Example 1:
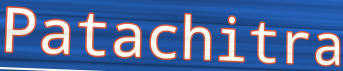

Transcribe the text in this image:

Patachitra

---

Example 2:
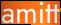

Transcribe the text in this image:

amitt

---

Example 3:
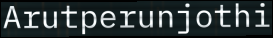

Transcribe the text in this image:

Arutperunjothi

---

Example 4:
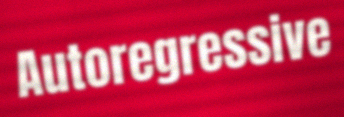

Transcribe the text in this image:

Autoregressive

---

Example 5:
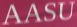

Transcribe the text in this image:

AASU